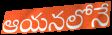
ఆయనలోనే